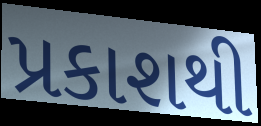
પ્રકાશથી